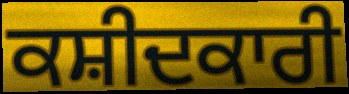
ਕਸ਼ੀਦਕਾਰੀ